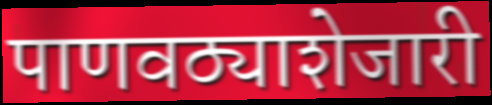
पाणवठ्याशेजारी